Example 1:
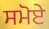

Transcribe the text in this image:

ਸਮੋਏ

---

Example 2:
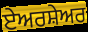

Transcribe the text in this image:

ਏਅਰਸ਼ੇਅਰ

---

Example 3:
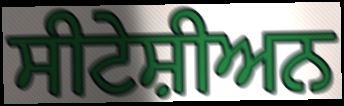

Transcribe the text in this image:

ਸੀਟੇਸ਼ੀਅਨ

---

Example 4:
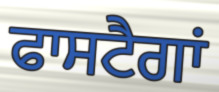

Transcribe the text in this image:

ਫਾਸਟੈਗਾਂ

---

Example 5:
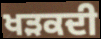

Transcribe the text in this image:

ਖੜਕਦੀ